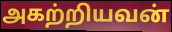
அகற்றியவன்